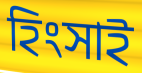
হিংসাই